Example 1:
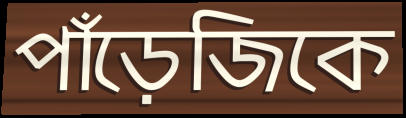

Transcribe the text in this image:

পাঁড়েজিকে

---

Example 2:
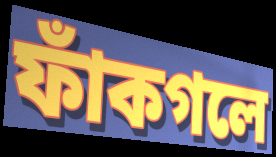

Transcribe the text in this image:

ফাঁকগলে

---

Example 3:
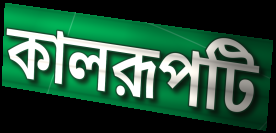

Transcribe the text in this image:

কালরূপটি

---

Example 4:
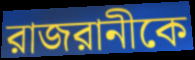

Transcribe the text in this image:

রাজরানীকে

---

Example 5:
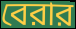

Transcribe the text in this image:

বেরার